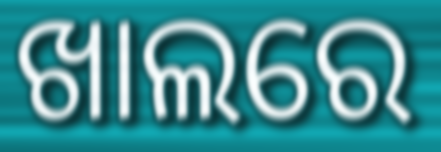
ଖାଲରେ